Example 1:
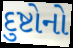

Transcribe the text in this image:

દુષ્ટોનો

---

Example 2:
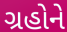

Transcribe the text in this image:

ગ્રહોને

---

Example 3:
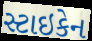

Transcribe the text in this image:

સ્ટાઇકેન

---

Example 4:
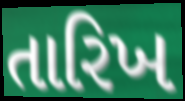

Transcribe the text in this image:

તારિખ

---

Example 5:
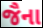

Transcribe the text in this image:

જૈના